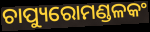
ଚାପ୍ୟୁରୋମଣ୍ଡଳକଂ